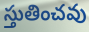
స్తుతించవు